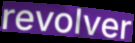
revolver